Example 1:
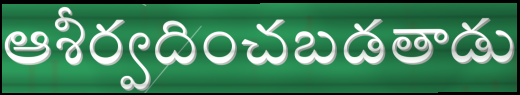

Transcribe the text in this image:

ఆశీర్వదించబడతాడు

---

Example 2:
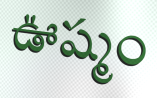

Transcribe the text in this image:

ఊష్మం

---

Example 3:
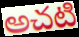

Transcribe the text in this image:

అచటి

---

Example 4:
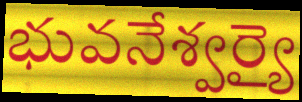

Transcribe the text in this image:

భువనేశ్వర్యై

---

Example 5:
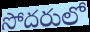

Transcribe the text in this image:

సోదరులో